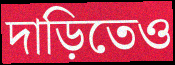
দাড়িতেও